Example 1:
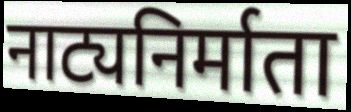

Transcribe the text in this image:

नाट्यनिर्माता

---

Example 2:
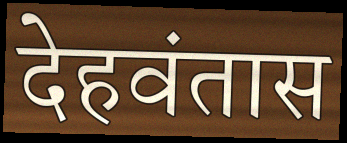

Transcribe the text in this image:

देहवंतास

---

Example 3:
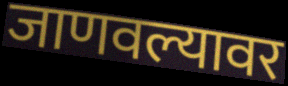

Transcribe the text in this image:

जाणवल्यावर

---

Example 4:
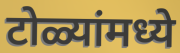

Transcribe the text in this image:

टोळ्यांमध्ये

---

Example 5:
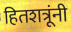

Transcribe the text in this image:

हितशत्रूंनी